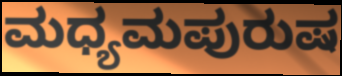
ಮಧ್ಯಮಪುರುಷ